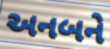
અનબને